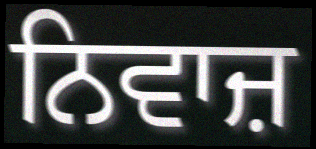
ਨਿਵਾਜ਼